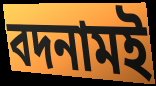
বদনামই